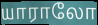
யாராலோ